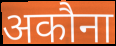
अकौना